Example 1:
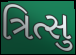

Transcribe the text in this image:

ત્રિત્સુ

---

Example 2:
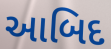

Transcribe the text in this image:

આબિદ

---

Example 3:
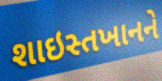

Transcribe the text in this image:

શાઇસ્તખાનને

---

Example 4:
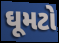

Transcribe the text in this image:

ઘૂમટો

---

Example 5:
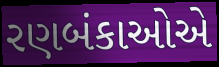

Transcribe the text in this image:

રણબંકાઓએ